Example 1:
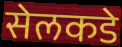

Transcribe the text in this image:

सेलकडे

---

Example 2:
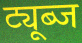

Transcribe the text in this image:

ट्यूब्ज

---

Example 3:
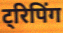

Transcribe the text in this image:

ट्रिपिंग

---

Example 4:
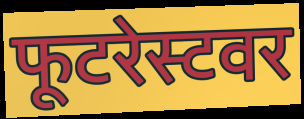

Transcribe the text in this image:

फूटरेस्टवर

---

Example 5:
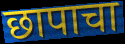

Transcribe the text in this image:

छापाचा